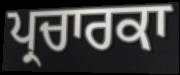
ਪ੍ਰਚਾਰਕਾ